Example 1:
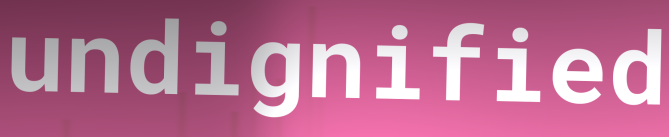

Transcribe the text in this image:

undignified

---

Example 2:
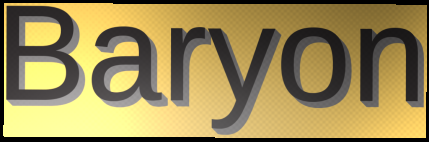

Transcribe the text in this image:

Baryon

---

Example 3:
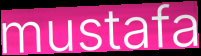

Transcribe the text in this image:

mustafa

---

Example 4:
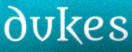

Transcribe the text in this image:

dukes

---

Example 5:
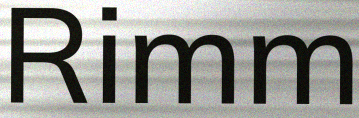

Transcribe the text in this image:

Rimm